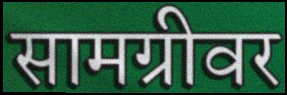
सामग्रीवर